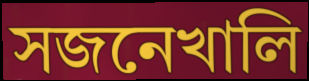
সজনেখালি